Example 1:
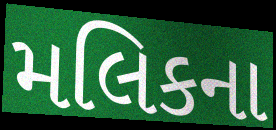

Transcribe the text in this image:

મલિકના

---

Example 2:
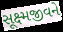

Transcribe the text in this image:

સૂક્ષ્મજીવને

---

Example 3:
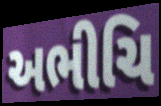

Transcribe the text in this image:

અભીચિ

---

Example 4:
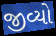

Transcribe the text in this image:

જીવ્યો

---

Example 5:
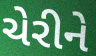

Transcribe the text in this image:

ચેરીને